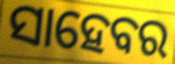
ସାହେବର